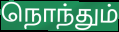
நொந்தும்